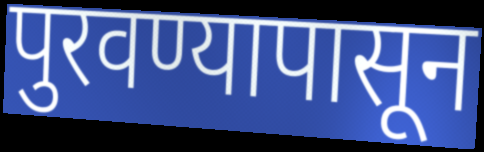
पुरवण्यापासून